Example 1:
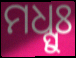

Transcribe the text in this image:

ମଧ୍ସୁଃ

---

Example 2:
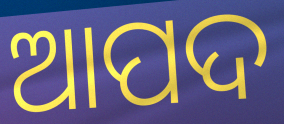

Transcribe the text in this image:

ଆପଦ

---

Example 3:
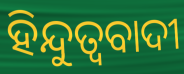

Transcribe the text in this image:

ହିନ୍ଦୁତ୍ବବାଦୀ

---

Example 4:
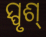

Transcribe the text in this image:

ସ୍ପୃଶ୍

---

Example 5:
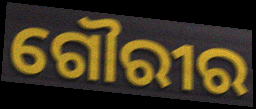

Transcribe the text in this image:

ଗୌରୀର